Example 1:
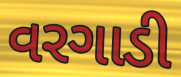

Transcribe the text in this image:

વરગાડી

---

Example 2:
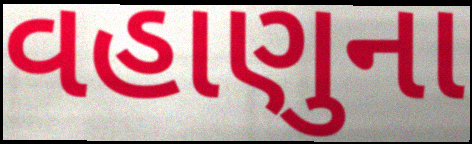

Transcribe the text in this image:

વહાણુના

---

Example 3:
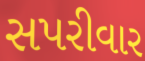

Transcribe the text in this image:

સપરીવાર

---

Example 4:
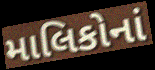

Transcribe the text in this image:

માલિકોનાં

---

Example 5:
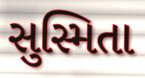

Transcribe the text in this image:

સુસ્મિતા